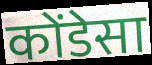
कोंडेसा